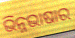
ଭିନ୍ନଭାଷାର